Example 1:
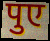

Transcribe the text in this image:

पुए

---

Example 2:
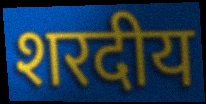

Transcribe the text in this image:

शरदीय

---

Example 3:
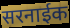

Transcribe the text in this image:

सरनाईक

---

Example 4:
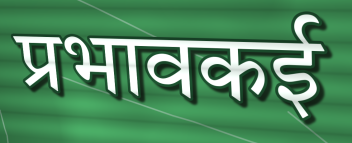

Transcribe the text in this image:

प्रभावकई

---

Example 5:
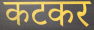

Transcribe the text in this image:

कटकर